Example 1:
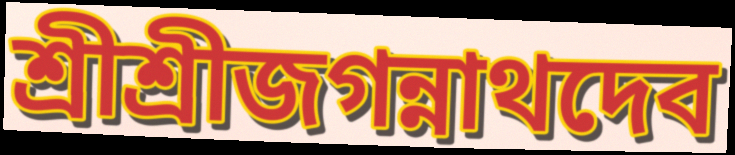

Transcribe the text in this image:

শ্রীশ্রীজগন্নাথদেব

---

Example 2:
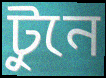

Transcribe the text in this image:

টুনে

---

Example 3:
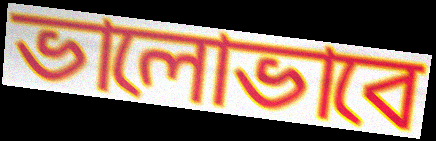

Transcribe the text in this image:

ভালোভাবে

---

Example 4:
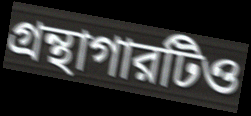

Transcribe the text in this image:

গ্রন্থাগারটিও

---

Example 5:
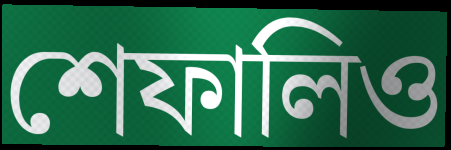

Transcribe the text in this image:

শেফালিও